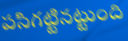
పసిగట్టినట్టుంది